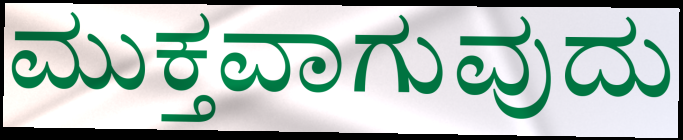
ಮುಕ್ತವಾಗುವುದು